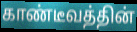
காண்டீவத்தின்